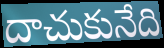
దాచుకునేది